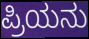
ಪ್ರಿಯನು